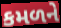
કમળને